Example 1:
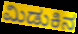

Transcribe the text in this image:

ಮಿಡುಕಿನ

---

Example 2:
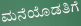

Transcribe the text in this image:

ಮನೆಯೊಡತಿಗೆ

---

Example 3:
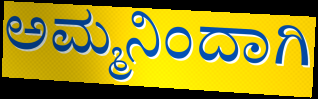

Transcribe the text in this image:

ಅಮ್ಮನಿಂದಾಗಿ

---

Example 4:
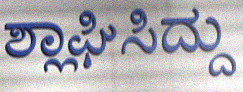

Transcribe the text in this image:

ಶ್ಲಾಘಿಸಿದ್ದು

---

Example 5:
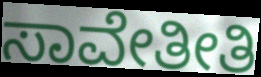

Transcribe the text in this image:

ಸಾವೇತೀತಿ